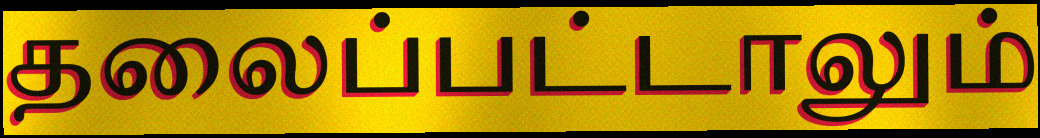
தலைப்பட்டாலும்